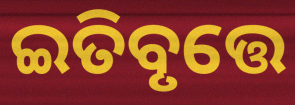
ଇତିବୃତ୍ତେ